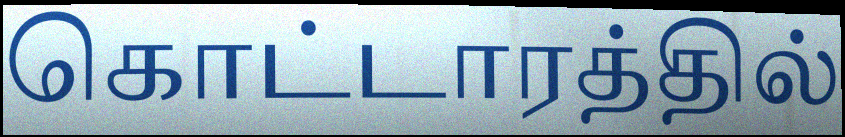
கொட்டாரத்தில்